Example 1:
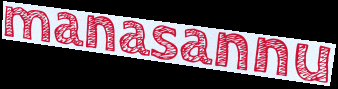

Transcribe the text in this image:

manasannu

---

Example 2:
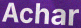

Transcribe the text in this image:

Achar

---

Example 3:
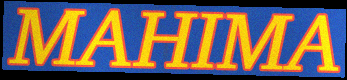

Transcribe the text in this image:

MAHIMA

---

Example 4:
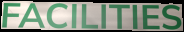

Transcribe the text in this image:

FACILITIES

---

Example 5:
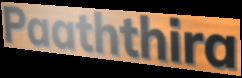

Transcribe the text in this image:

Paaththira